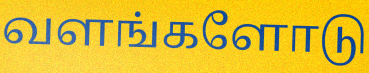
வளங்களோடு